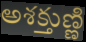
అశక్తుణ్ణి